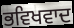
ਭਵਿਖਵਾਦ